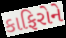
કાફિરોને